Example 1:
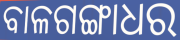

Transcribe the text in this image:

ବାଳଗଙ୍ଗାଧର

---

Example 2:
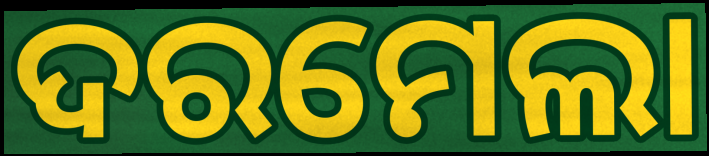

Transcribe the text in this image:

ଦରମେଲା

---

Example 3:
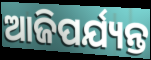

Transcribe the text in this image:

ଆଜିପର୍ଯ୍ୟନ୍ତ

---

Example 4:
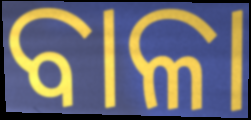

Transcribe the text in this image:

ବାଳା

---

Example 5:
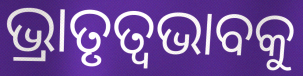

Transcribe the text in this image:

ଭ୍ରାତୃତ୍ୱଭାବକୁ